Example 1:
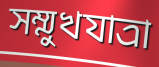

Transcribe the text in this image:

সম্মুখযাত্রা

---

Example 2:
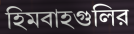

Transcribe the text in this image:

হিমবাহগুলির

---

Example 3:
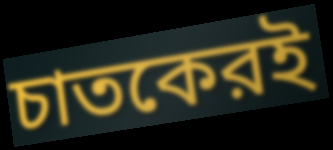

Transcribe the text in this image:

চাতকেরই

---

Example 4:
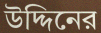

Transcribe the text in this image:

উদ্দিনের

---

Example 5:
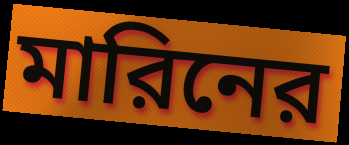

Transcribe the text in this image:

মারিনের